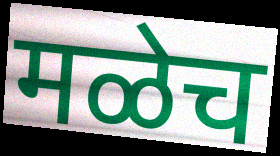
मळेच